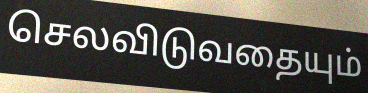
செலவிடுவதையும்